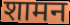
शामन